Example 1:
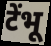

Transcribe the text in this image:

टेंभू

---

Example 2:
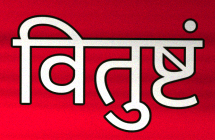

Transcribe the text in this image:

वितुष्टं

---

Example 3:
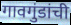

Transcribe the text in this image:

गावगुंडांची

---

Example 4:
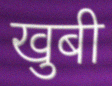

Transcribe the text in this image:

खुबी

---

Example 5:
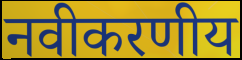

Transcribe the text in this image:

नवीकरणीय